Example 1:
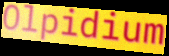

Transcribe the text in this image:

Olpidium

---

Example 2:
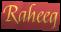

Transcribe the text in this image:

Raheeq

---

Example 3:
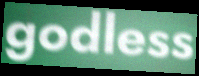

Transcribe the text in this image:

godless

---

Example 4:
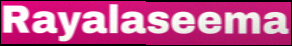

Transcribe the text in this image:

Rayalaseema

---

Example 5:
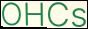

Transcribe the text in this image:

OHCs